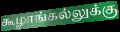
கூழாங்கல்லுக்கு